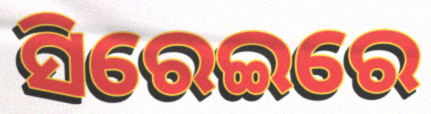
ସିରେଇରେ